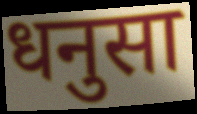
धनुसा